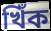
খিঁক